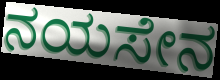
ನಯಸೇನ